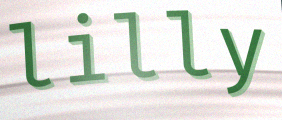
lilly